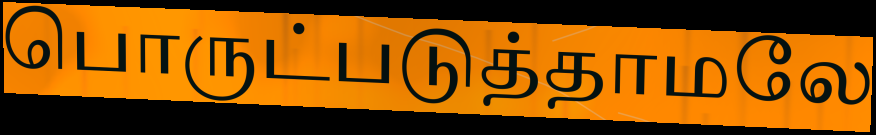
பொருட்படுத்தாமலே